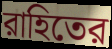
রাহিতের